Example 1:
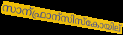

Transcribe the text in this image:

സാന്ഫ്രാന്സിസ്കോയില്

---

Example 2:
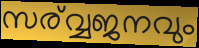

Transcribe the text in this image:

സര്വ്വജനവും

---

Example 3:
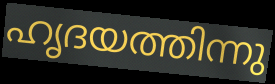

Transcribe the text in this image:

ഹൃദയത്തിന്നു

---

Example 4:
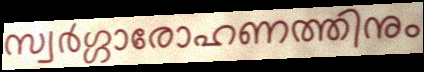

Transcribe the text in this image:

സ്വർഗ്ഗാരോഹണത്തിനും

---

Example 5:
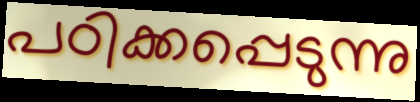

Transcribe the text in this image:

പഠിക്കപ്പെടുന്നു